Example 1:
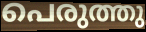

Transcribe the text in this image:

പെരുത്തു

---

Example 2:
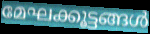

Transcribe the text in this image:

മേഘക്കൂട്ടങ്ങൾ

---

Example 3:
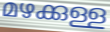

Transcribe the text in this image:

മഴക്കുള്ള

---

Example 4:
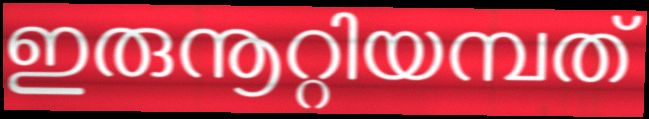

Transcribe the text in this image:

ഇരുനൂറ്റിയമ്പത്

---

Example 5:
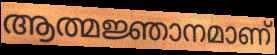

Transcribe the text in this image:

ആത്മജ്ഞാനമാണ്